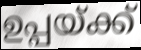
ഉപ്പയ്ക്ക്